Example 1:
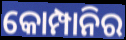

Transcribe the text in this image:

କୋମ୍ପାନିର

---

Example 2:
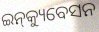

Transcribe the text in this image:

ଇନ୍‌କ୍ୟୁବେସନ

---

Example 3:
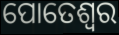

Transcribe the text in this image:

ପୋତେଶ୍ବର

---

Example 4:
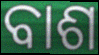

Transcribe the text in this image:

ବାଶ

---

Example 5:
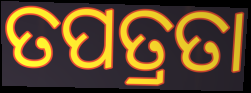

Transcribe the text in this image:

ତପତ୍ରତା